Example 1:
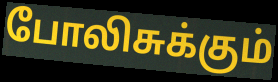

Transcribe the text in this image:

போலிசுக்கும்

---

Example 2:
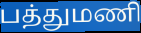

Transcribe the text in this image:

பத்துமணி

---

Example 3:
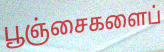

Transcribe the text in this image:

பூஞ்சைகளைப்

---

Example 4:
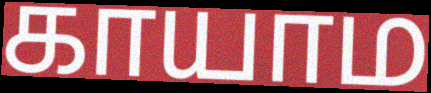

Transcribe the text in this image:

காயாம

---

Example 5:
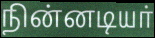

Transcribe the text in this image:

நின்னடியர்